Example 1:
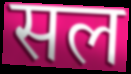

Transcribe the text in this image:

सल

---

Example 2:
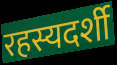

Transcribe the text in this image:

रहस्यदर्शी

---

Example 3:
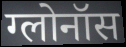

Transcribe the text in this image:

ग्लोनॉस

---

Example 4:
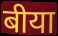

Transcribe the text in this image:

बीया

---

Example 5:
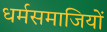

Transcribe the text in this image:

धर्मसमाजियों